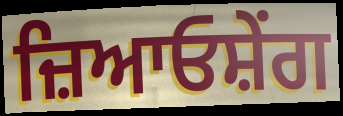
ਜ਼ਿਆਓਸ਼ੇਂਗ